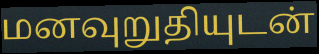
மனவுறுதியுடன்